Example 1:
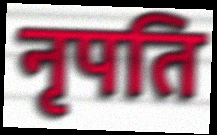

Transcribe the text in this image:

नृपति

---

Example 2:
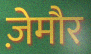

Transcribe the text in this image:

ज़ेमौर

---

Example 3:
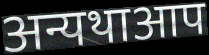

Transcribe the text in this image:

अन्यथाआप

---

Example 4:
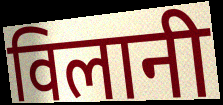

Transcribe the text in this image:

विलानी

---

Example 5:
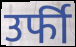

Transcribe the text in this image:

उर्फी